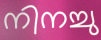
നിനച്ചു